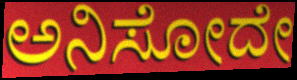
ಅನಿಸೋದೇ